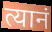
त्यानं